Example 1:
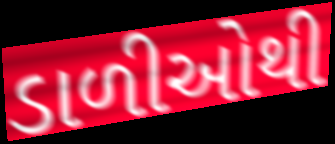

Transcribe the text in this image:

ડાળીઓથી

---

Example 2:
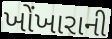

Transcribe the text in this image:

ખોંખારાની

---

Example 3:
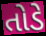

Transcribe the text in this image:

તોડે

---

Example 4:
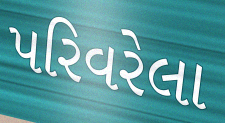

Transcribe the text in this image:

પરિવરેલા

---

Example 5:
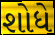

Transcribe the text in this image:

શોધે